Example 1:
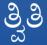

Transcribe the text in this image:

ತ್ವಿತಿ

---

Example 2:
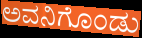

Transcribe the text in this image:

ಅವನಿಗೊಂಡು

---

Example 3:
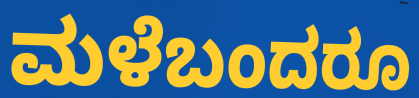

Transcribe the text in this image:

ಮಳೆಬಂದರೂ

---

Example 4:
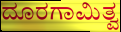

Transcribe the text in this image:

ದೂರಗಾಮಿತ್ವ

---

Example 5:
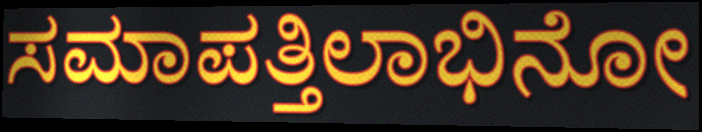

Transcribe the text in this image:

ಸಮಾಪತ್ತಿಲಾಭಿನೋ